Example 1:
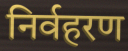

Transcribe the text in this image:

निर्वहरण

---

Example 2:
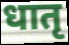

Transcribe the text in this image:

धातृ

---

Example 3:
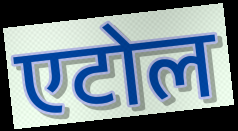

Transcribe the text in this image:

एटोल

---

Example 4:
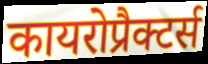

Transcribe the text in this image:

कायरोप्रैक्टर्स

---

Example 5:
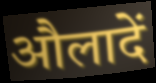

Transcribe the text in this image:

औलादें